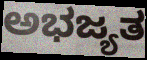
ಅಭಜ್ಯತ